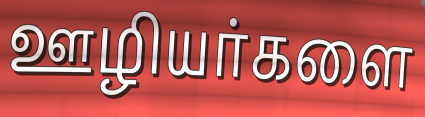
ஊழியர்களை